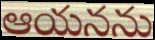
ఆయనను